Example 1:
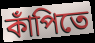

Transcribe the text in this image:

কাঁপিতে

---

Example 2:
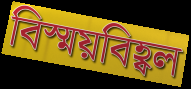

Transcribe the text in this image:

বিস্ময়বিহ্বল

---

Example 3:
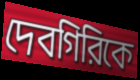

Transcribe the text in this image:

দেবগিরিকে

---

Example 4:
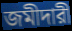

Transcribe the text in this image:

জমীদারী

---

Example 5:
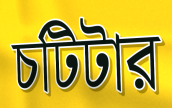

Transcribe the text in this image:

চটিটার